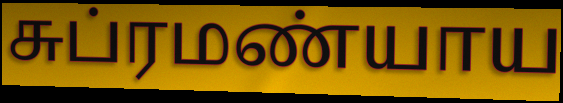
சுப்ரமண்யாய